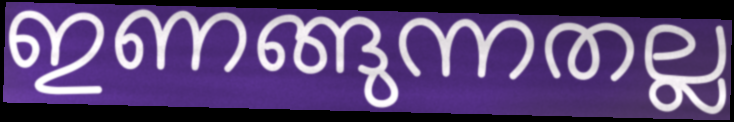
ഇണങ്ങുന്നതല്ല